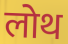
लोथ